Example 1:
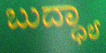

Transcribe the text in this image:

ಬುದ್ಧ್ಯಾ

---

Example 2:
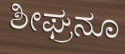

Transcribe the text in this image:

ಶೀಘ್ರನೂ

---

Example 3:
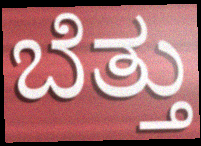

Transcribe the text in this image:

ಬೆತ್ತು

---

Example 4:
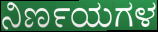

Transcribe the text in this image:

ನಿರ್ಣಯಗಳ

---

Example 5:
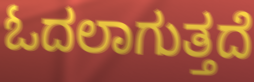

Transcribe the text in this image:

ಓದಲಾಗುತ್ತದೆ